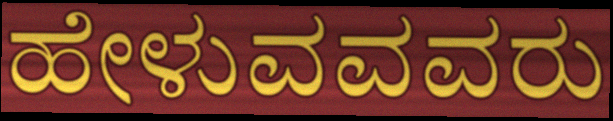
ಹೇಳುವವವರು